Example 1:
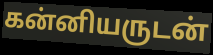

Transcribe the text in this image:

கன்னியருடன்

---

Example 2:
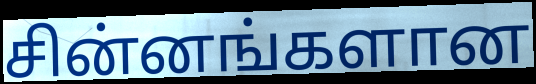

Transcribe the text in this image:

சின்னங்களான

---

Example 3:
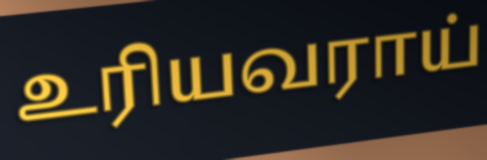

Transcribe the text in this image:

உரியவராய்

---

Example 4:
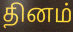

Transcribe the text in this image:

தினம்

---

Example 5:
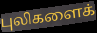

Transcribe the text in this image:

புலிகளைக்